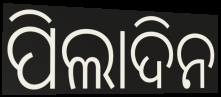
ପିଲାଦିନ